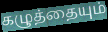
கழுத்தையும்